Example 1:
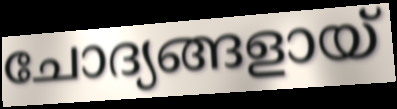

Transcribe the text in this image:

ചോദ്യങ്ങളായ്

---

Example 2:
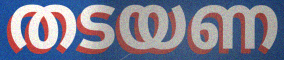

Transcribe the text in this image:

തടയണ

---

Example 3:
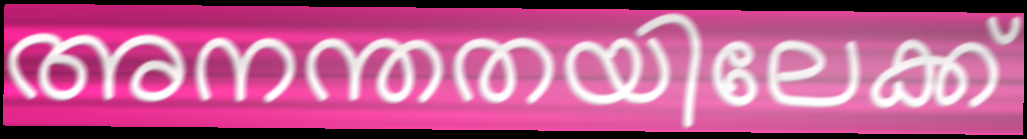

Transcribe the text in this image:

അനന്തതയിലേക്ക്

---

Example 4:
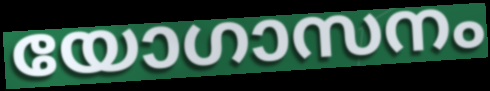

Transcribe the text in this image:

യോഗാസനം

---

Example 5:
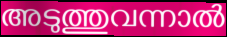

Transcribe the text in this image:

അടുത്തുവന്നാൽ